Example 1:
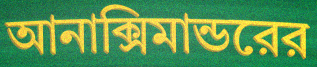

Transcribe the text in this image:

আনাক্সিমান্ডরের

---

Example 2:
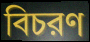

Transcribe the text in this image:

বিচরণ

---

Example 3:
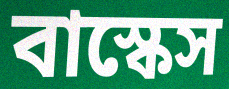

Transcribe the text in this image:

বাস্কেস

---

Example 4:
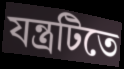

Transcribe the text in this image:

যন্ত্রটিতে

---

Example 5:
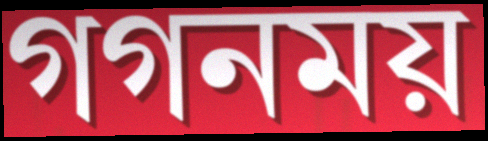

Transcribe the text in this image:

গগনময়